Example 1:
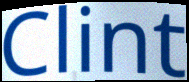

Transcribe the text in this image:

Clint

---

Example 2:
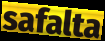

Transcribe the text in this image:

safalta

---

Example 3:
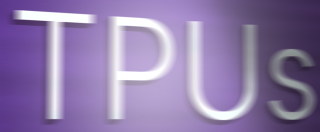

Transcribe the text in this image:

TPUs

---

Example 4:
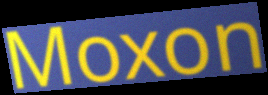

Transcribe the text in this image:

Moxon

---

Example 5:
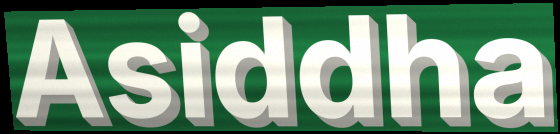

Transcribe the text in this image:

Asiddha